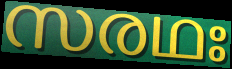
സരഥഃ